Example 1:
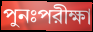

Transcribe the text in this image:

পুনঃপরীক্ষা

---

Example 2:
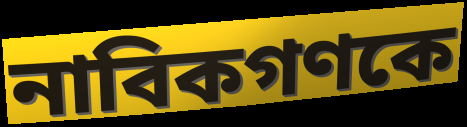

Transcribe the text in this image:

নাবিকগণকে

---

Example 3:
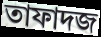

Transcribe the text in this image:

তাফাদজ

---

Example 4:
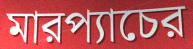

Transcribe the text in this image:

মারপ্যাচের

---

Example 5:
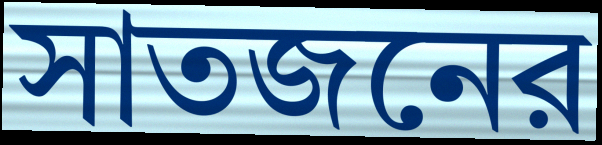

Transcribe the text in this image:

সাতজনের